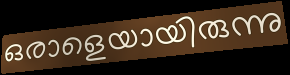
ഒരാളെയായിരുന്നു